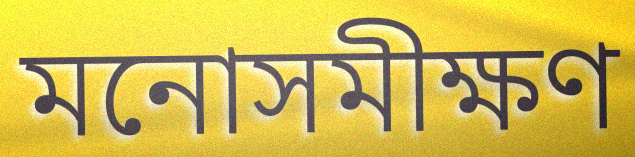
মনোসমীক্ষণ